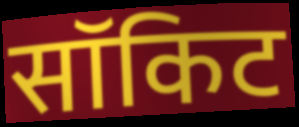
सॉकिट